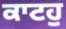
ਕਾਟਹੁ